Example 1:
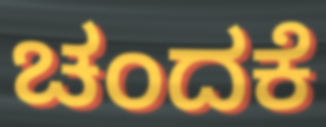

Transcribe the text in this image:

ಚಂದಕೆ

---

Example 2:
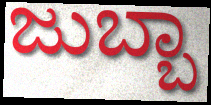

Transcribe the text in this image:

ಜುಬ್ಬಾ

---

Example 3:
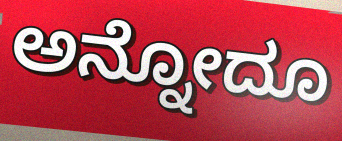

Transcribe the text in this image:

ಅನ್ನೋದೂ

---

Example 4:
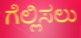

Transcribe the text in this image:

ಗೆಲ್ಲಿಸಲು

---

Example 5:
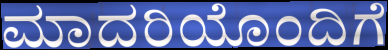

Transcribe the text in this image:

ಮಾದರಿಯೊಂದಿಗೆ